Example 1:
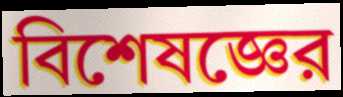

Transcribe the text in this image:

বিশেষজ্ঞের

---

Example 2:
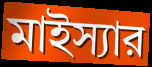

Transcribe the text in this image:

মাইস্যার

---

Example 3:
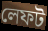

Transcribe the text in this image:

লেফট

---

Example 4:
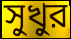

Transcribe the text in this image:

সুখুর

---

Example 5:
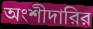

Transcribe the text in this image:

অংশীদারির